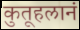
कुतूहलानं